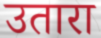
उतारा